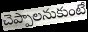
చెప్పాలనుకుంటే